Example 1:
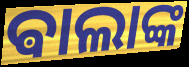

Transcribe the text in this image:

ଵାଲାଙ୍କ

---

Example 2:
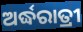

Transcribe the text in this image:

ଅର୍ଦ୍ଧରାତ୍ରୀ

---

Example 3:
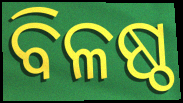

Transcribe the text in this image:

ବିଳଷ୍ଠ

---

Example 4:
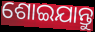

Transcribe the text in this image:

ଶୋଇଯାନ୍ତୁ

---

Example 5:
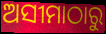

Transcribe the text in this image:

ଅସୀମାଠାରୁ